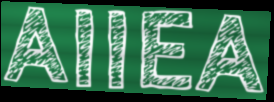
AIIEA